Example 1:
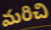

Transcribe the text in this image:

మరిచి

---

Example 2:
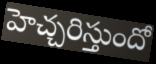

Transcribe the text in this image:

హెచ్చరిస్తుందో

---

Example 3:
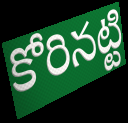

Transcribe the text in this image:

కోరినట్టి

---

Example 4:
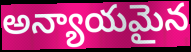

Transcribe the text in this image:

అన్యాయమైన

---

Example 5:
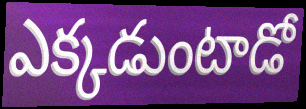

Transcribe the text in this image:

ఎక్కడుంటాడో